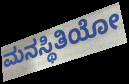
ಮನಸ್ಥಿತಿಯೋ